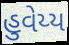
હુવેય્ય